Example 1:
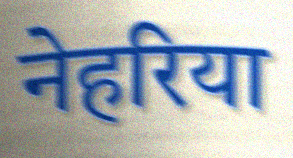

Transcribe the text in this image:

नेहरिया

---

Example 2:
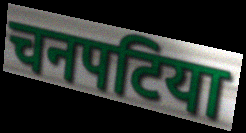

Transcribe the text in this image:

चनपटिया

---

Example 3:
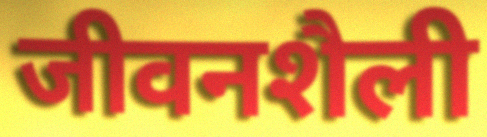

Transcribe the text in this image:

जीवनशैली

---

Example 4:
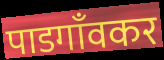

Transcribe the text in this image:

पाडगाँवकर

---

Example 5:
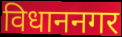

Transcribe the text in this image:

विधाननगर